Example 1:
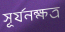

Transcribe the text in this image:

সূর্যনক্ষত্র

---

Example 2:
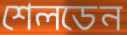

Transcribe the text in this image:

শেলডেন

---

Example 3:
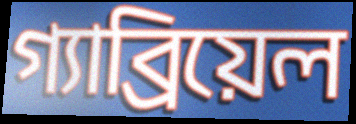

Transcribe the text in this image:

গ্যাব্রিয়েল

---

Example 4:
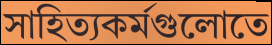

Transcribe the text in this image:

সাহিত্যকর্মগুলোতে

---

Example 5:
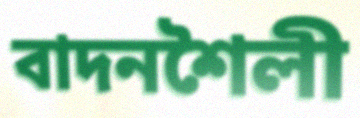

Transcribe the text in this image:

বাদনশৈলী